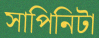
সাপিনিটা